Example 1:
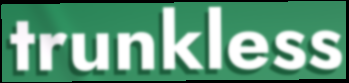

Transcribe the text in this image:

trunkless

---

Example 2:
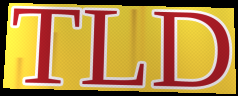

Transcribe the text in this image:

TLD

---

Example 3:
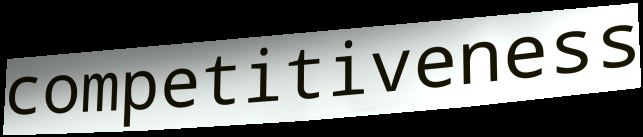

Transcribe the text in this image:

competitiveness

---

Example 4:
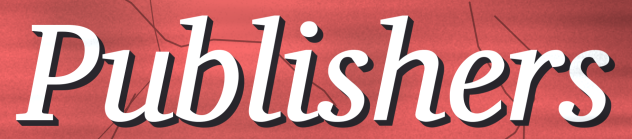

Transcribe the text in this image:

Publishers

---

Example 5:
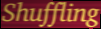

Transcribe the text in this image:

Shuffling